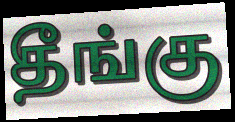
தீங்கு